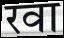
रवा